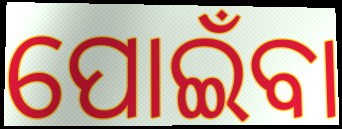
ପୋଇଁବା